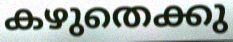
കഴുതെക്കു